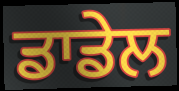
ਡਾਡੇਲ